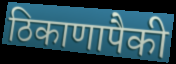
ठिकाणापैकी